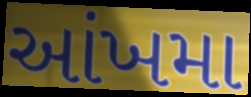
આંખમા